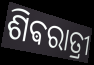
ଶିଵରାତ୍ରୀ